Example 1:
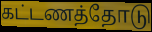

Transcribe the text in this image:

கட்டணத்தோடு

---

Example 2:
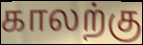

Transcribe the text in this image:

காலற்கு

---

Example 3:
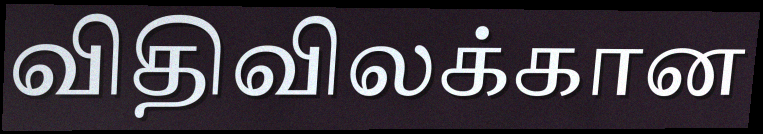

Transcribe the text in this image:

விதிவிலக்கான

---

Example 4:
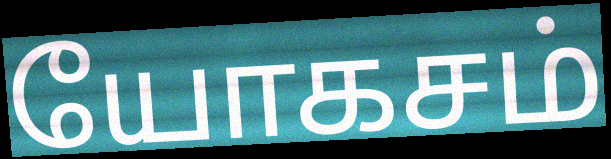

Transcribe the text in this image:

யோகசம்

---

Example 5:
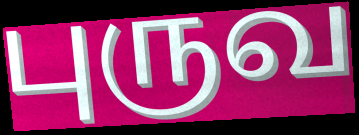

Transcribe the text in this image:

புருவ